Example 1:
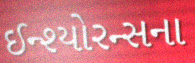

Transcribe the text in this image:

ઈન્શ્યોરન્સના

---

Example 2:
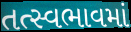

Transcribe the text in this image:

તત્સ્વભાવમાં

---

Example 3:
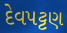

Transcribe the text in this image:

દેવપટ્ટણ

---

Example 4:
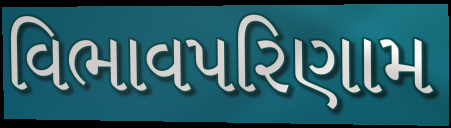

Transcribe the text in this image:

વિભાવપરિણામ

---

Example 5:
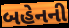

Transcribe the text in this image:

બહેનની